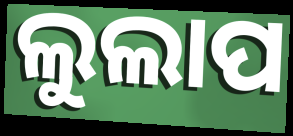
ଲୁଲାପ